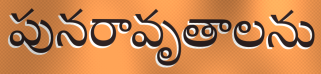
పునరావృతాలను